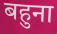
बहुना